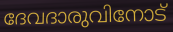
ദേവദാരുവിനോട്